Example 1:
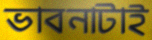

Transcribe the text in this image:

ভাবনাটাই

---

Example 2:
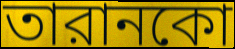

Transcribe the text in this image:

তারানকো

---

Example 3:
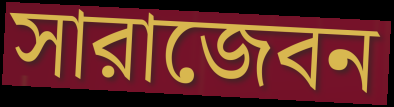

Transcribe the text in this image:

সারাজেবন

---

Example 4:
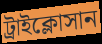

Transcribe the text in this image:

ট্রাইক্লোসান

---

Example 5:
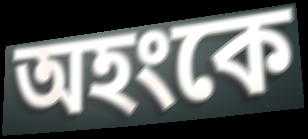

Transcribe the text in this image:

অহংকে